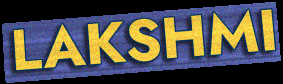
LAKSHMI